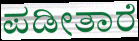
ಪಡೀತಾರೆ